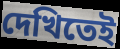
দেখিতেই